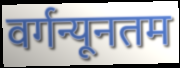
वर्गन्यूनतम